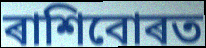
ৰাশিবোৰত